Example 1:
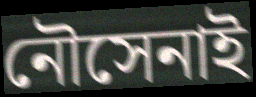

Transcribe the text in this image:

নৌসেনাই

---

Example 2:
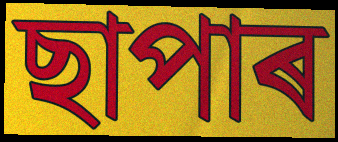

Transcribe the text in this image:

ছাপাৰ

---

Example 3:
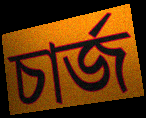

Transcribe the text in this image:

চাৰ্জ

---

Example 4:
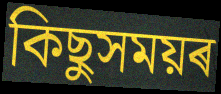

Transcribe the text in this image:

কিছুসময়ৰ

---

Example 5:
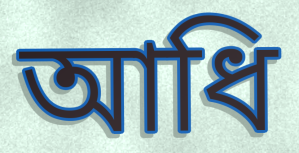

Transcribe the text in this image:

আধি